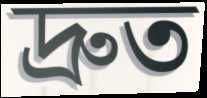
দ্ৰুত